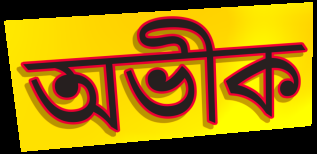
অভীক